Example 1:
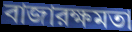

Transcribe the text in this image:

বাজারক্ষমতা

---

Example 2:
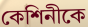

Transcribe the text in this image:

কেশিনীকে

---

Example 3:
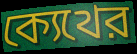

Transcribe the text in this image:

ক্যেথের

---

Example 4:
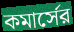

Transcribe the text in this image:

কমার্সের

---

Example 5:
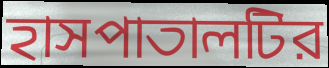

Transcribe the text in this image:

হাসপাতালটির